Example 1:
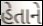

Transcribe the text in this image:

હેતાને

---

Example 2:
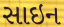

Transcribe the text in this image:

સાઇન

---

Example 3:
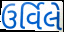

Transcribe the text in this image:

ઉર્વિલે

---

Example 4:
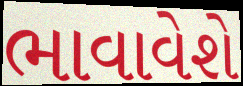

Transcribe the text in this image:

ભાવાવેશે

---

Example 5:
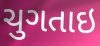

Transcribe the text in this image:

ચુગતાઇ